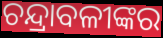
ଚନ୍ଦ୍ରାବଳୀଙ୍କର